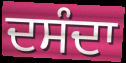
ਦਸੰਦਾ